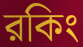
রকিং